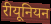
रीयूनियन